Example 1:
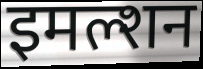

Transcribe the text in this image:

इमल्शन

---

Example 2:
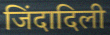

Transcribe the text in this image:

जिंदादिली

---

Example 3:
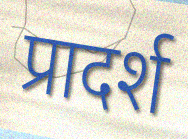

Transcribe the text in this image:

प्रादर्श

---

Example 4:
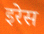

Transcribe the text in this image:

इरेस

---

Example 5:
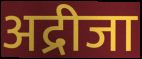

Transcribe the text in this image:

अद्रीजा